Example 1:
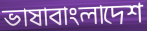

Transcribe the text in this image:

ভাষাবাংলাদেশ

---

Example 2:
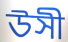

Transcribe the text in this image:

উসী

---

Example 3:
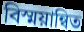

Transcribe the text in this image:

বিস্ময়ান্বিত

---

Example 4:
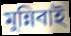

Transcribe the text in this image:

মুন্নিবাই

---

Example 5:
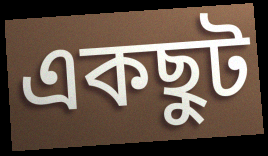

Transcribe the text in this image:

একছুট